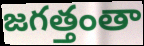
జగత్తంతా